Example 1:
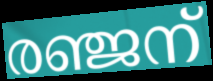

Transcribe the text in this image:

രഞ്ജന്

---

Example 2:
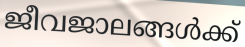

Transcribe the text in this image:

ജീവജാലങ്ങൾക്ക്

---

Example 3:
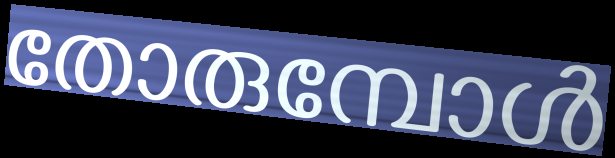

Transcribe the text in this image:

തോരുമ്പോൾ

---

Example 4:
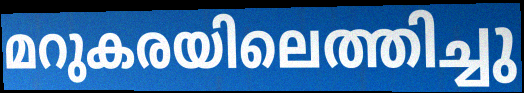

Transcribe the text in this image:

മറുകരയിലെത്തിച്ചു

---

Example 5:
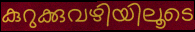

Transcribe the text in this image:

കുറുക്കുവഴിയിലൂടെ